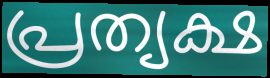
പ്രത്യക്ഷ